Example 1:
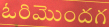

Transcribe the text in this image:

ఓరిమొందగ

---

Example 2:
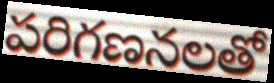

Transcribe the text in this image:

పరిగణనలతో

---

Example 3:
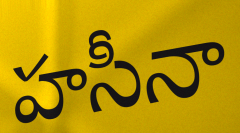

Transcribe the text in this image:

హసీనా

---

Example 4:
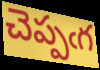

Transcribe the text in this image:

చెప్పఁగ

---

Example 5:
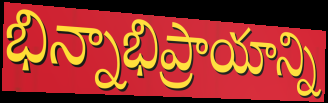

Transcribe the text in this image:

భిన్నాభిప్రాయాన్ని